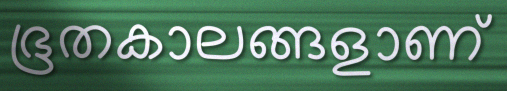
ഭൂതകാലങ്ങളാണ്